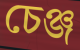
চেঞ্জ